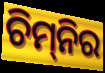
ଚିମ୍‌ନିର